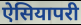
ऐसियापरी